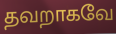
தவறாகவே